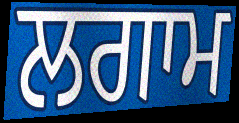
ਲਗਾਮ